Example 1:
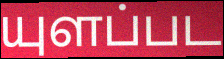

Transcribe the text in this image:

யுளப்பட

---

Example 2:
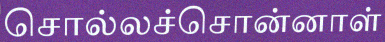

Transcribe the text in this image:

சொல்லச்சொன்னாள்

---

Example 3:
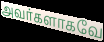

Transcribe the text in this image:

அவர்களாகவே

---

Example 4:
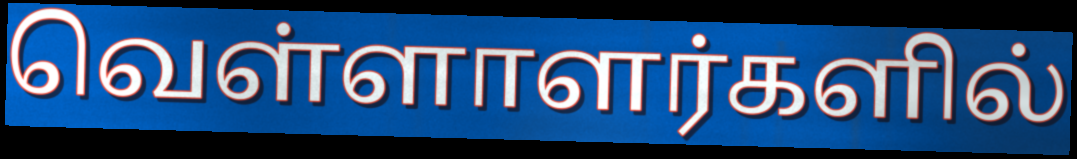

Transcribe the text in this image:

வெள்ளாளர்களில்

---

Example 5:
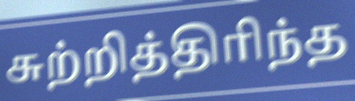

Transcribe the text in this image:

சுற்றித்திரிந்த